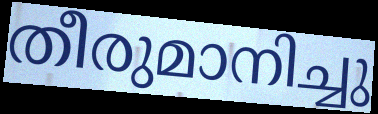
തീരുമാനിച്ചു